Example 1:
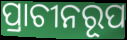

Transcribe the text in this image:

ପ୍ରାଚୀନରୂପ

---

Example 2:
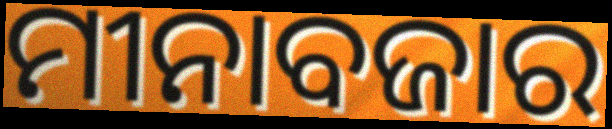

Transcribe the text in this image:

ମୀନାବଜାର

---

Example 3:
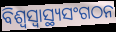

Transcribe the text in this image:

ବିଶ୍ଵସ୍ଵାସ୍ଥ୍ୟସଂଗଠନ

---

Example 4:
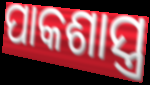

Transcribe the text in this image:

ପାକଶାସ୍ତ୍ର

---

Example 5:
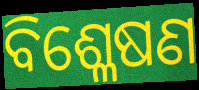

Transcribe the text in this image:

ବିଶ୍ଳେଷଣ